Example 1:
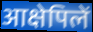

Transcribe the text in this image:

आक्षेपिलें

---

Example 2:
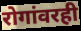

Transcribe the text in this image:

रोगांवरही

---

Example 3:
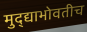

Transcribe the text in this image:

मुद्द्याभोवतीच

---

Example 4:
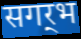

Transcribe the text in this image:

सगर्भ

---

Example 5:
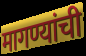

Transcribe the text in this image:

मागण्यांची